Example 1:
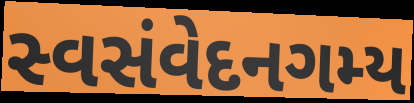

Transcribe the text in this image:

સ્વસંવેદનગમ્ય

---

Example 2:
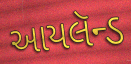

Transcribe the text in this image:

આયલૅન્ડ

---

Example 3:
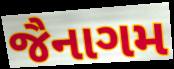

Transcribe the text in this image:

જૈનાગમ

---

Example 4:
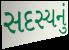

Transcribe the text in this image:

સદસ્યનું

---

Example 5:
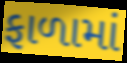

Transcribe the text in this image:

ફાળામાં